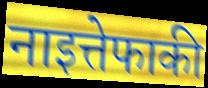
नाइत्तेफाकी